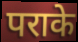
पराके